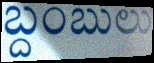
బ్దంబులు